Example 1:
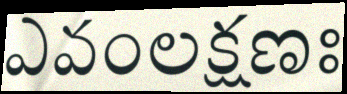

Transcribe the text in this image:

ఎవంలక్షణః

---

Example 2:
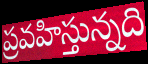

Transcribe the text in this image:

ప్రవహిస్తున్నది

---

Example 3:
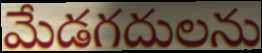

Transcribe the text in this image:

మేడగదులను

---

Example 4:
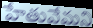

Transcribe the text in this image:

హేతువేమని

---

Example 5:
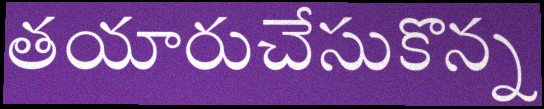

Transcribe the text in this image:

తయారుచేసుకొన్న